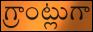
గ్రాంట్లుగా